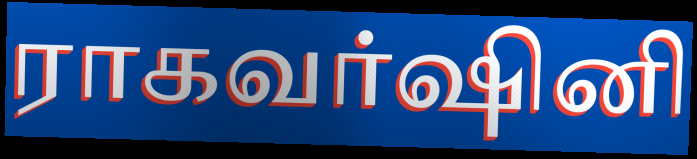
ராகவர்ஷினி